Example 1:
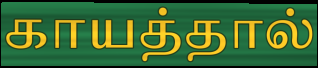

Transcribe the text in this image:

காயத்தால்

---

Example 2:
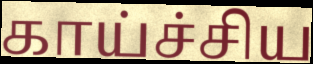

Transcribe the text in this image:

காய்ச்சிய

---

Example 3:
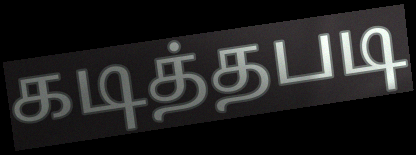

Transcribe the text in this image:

கடித்தபடி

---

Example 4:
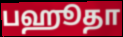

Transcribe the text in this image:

பஹூதா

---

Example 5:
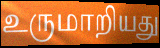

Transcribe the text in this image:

உருமாறியது